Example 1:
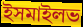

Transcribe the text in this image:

ইসমাইলভ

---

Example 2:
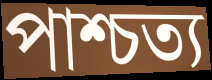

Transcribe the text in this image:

পাশ্চত্য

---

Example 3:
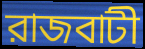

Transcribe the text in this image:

রাজবাটী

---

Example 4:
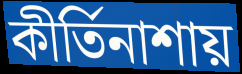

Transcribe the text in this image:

কীর্তিনাশায়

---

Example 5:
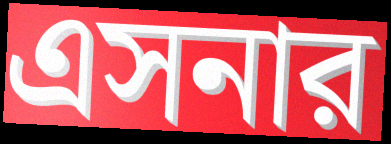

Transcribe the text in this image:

এসনার